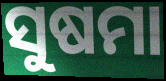
ସୁଷମା